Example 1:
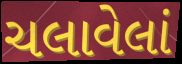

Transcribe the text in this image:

ચલાવેલાં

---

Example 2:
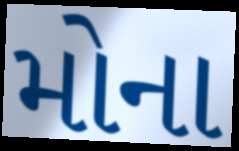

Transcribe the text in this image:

મોના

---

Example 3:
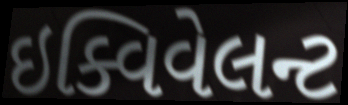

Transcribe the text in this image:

ઇક્વિવેલન્ટ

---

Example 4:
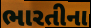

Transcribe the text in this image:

ભારતીના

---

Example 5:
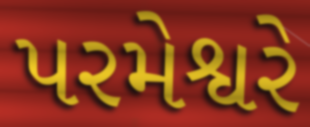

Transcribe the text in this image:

પરમેશ્વરે